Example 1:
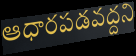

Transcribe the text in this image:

ఆధారపడవద్దని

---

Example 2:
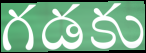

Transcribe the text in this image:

గడకు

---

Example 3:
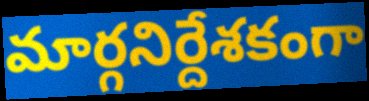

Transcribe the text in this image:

మార్గనిర్దేశకంగా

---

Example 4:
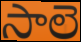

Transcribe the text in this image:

సాలె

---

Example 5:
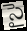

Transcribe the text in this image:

సై